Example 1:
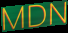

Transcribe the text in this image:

MDN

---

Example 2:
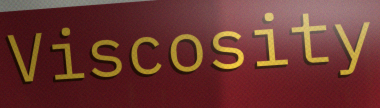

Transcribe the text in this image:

Viscosity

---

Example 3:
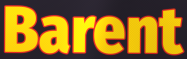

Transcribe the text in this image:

Barent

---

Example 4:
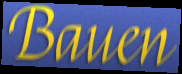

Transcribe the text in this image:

Bauen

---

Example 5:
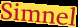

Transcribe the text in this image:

Simnel